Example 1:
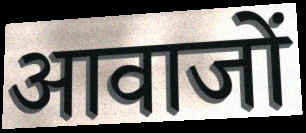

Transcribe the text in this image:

आवाजों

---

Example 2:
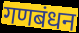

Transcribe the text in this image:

गणबंधन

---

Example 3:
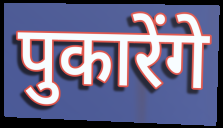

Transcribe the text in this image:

पुकारेंगे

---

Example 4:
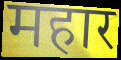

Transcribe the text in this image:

महार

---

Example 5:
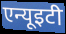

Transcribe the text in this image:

एन्यूइटी